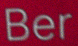
Ber